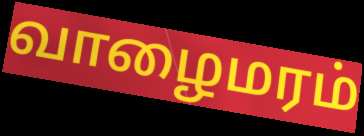
வாழைமரம்